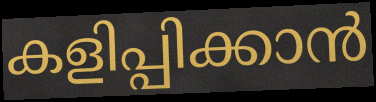
കളിപ്പിക്കാൻ